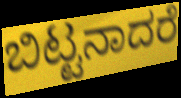
ಬಿಟ್ಟನಾದರೆ